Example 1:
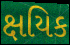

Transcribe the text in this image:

ક્ષયિક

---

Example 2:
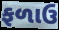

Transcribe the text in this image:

ફળાઉ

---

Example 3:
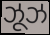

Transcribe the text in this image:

ઝૂઝ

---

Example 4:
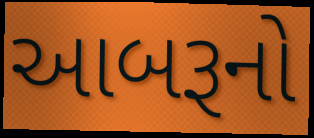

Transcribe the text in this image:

આબરૂનો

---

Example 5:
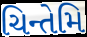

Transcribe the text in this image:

ચિન્તેમિ